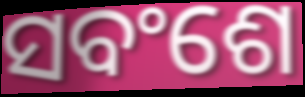
ସବଂଶେ